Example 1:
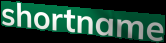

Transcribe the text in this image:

shortname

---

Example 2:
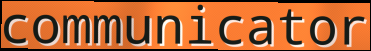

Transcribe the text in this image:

communicator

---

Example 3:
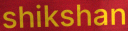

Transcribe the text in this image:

shikshan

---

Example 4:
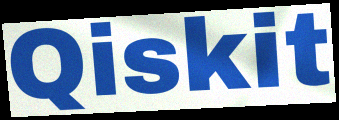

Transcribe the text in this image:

Qiskit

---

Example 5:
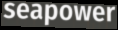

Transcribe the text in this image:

seapower